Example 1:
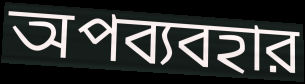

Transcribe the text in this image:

অপব্যবহার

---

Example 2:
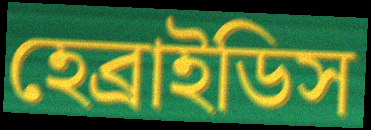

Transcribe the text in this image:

হেব্রাইডিস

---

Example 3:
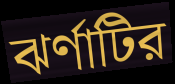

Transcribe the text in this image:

ঝর্ণাটির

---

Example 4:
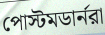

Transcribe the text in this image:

পোস্টমডার্নরা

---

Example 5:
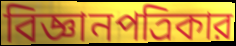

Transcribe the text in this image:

বিজ্ঞানপত্রিকার